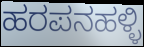
ಹರಪನಹಳ್ಳಿ